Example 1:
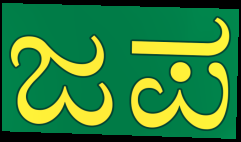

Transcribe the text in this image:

ಜಪ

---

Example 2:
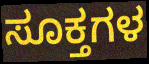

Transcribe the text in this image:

ಸೂಕ್ತಗಳ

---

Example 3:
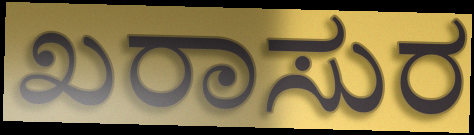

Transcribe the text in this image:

ಖರಾಸುರ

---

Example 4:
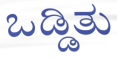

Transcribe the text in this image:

ಒಡ್ಡಿತು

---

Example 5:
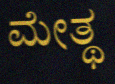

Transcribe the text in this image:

ಮೇತ್ಥ